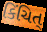
કિંચિત્